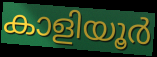
കാളിയൂർ